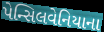
પેન્સિલવેનિયાના